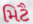
મિટૈ